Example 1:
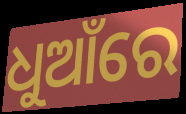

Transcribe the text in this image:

ଧୁଆଁରେ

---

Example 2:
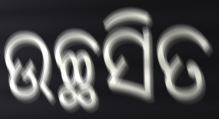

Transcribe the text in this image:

ଉଚ୍ଛସିତ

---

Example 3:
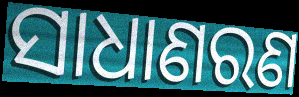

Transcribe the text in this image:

ସାଧାଣରଣ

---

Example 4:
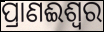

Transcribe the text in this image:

ପ୍ରାଣଈଶ୍ୱର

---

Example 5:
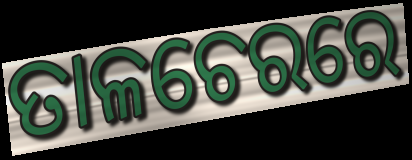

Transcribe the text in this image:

ତାଳଚେରରେ